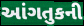
આંગતુકની